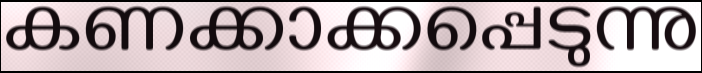
കണക്കാക്കപ്പെടുന്നു